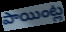
పాయింట్ల